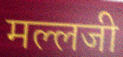
मल्लजी